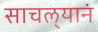
साचल्यानं